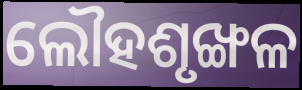
ଲୌହଶୃଙ୍ଖଳ